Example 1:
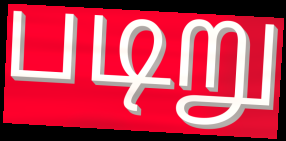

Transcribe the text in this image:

படிறு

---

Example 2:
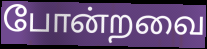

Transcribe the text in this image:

போன்றவை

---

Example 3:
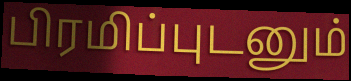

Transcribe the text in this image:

பிரமிப்புடனும்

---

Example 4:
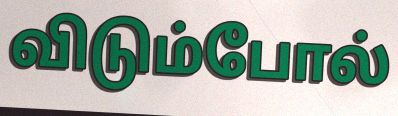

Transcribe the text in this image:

விடும்போல்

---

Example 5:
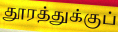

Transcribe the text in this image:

தூரத்துக்குப்